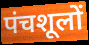
पंचशूलों